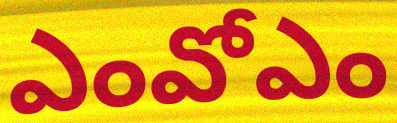
ఎంవోఎం